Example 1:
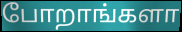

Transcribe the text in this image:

போறாங்களா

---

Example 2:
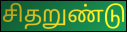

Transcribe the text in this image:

சிதறுண்டு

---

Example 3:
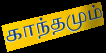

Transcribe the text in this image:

காந்தமும்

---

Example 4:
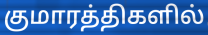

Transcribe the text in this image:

குமாரத்திகளில்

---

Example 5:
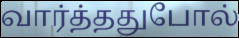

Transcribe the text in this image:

வார்த்ததுபோல்